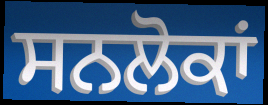
ਸਨਲੋਕਾਂ